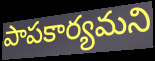
పాపకార్యమని